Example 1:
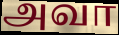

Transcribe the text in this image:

அவா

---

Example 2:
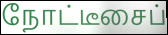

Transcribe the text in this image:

நோட்டீசைப்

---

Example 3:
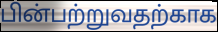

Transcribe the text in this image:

பின்பற்றுவதற்காக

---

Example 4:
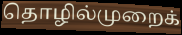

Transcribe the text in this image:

தொழில்முறைக்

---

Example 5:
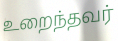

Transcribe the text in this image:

உறைந்தவர்